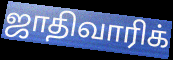
ஜாதிவாரிக்